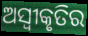
ଅସ୍ୱୀକୃତିର